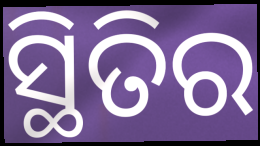
ସ୍ଥିତିର